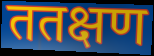
ततक्षण